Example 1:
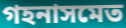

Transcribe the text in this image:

গহনাসমেত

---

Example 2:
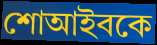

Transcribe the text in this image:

শোআইবকে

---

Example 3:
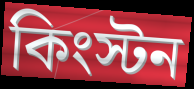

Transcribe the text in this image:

কিংস্টন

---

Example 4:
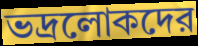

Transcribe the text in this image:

ভদ্রলোকদের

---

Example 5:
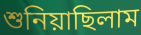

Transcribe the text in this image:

শুনিয়াছিলাম